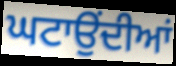
ਘਟਾਉਂਦੀਆਂ